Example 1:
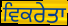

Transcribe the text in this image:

ਵਿਕਰੇਤਾ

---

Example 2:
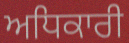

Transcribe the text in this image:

ਅਧਿਕਾਰੀ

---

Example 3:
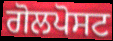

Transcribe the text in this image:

ਗੋਲਪੋਸਟ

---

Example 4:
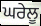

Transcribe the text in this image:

ਘਰੇਲੂ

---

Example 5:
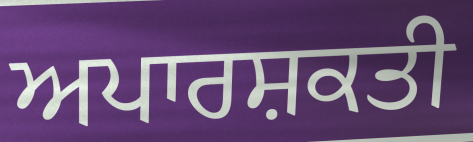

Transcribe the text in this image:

ਅਪਾਰਸ਼ਕਤੀ